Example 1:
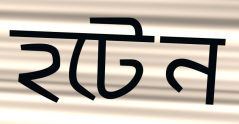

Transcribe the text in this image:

হটেন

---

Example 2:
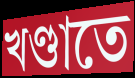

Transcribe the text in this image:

খণ্ডাতে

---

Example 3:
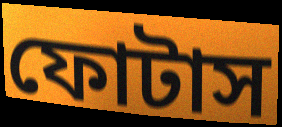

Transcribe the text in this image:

ফোটাস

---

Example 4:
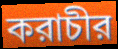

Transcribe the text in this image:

করাচীর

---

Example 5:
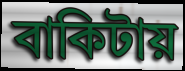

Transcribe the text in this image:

বাকিটায়